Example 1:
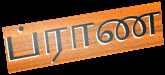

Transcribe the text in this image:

ப்ராண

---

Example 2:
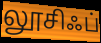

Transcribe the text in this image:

லூசிஃப்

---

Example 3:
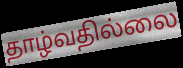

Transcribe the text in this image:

தாழ்வதில்லை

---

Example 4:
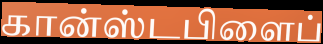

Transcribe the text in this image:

கான்ஸ்டபிளைப்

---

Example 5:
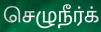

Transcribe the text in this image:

செழுநீர்க்